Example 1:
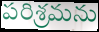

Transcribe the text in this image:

పరిశ్రమను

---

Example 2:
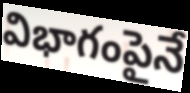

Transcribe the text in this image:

విభాగంపైనే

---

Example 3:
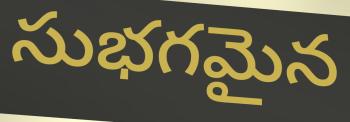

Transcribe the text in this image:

సుభగమైన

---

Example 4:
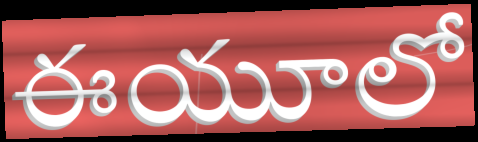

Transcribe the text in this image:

ఈయూలో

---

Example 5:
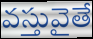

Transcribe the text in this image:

వస్తువైతే